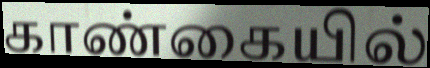
காண்கையில்